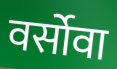
वर्सोवा